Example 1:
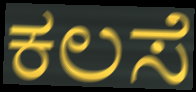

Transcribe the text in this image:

ಕಲಸೆ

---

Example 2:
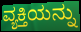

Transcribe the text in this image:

ವ್ಯಕ್ತಿಯನ್ನು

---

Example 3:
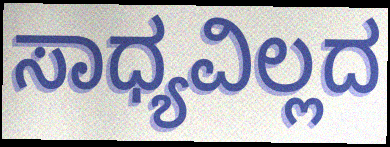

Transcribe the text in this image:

ಸಾಧ್ಯವಿಲ್ಲದ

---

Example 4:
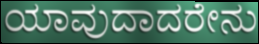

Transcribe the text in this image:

ಯಾವುದಾದರೇನು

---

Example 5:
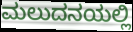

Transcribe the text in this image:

ಮಲುದನಯಲ್ಲಿ